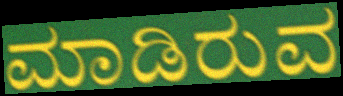
ಮಾಡಿರುವ